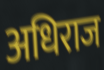
अधिराज